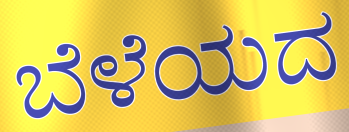
ಬೆಳೆಯದ